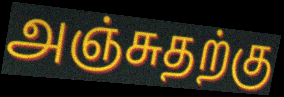
அஞ்சுதற்கு